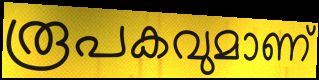
രൂപകവുമാണ്